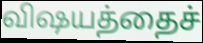
விஷயத்தைச்